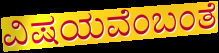
ವಿಷಯವೆಂಬಂತೆ